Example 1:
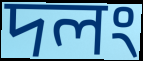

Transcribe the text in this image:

দলং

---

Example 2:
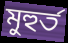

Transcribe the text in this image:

মুহুৰ্ত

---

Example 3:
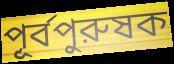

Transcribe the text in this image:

পূৰ্বপুৰুষক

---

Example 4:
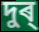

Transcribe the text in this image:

দুৰ্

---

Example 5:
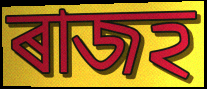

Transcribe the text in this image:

ৰাজহ